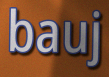
bauj